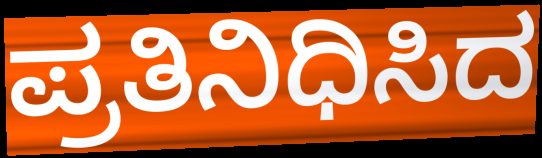
ಪ್ರತಿನಿಧಿಸಿದ